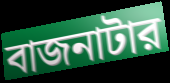
বাজনাটার